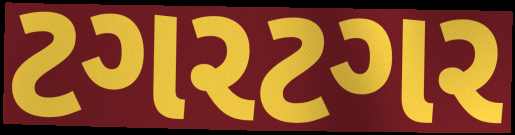
ટગરટગર